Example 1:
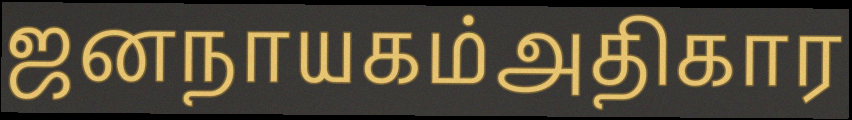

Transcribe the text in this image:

ஜனநாயகம்அதிகார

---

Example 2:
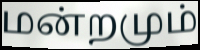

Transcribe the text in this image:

மன்றமும்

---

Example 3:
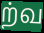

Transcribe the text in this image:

ற்வ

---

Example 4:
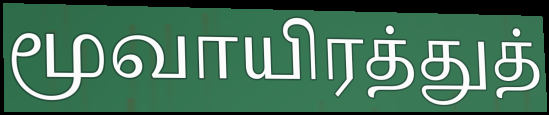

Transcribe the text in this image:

மூவாயிரத்துத்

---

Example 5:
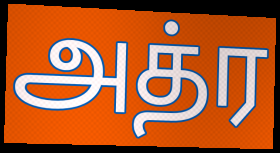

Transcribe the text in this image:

அத்ர